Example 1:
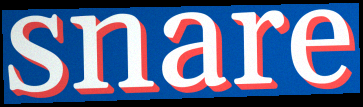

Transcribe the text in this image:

snare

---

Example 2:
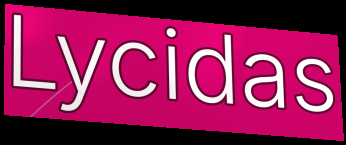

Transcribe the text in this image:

Lycidas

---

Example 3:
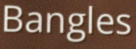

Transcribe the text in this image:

Bangles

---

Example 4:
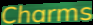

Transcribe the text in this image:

Charms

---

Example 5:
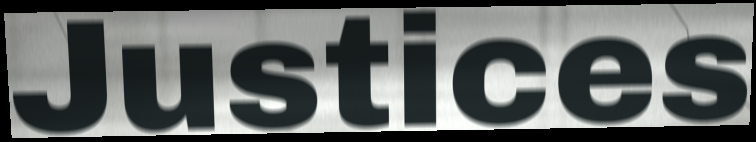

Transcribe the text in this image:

Justices